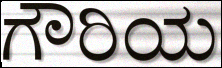
ಗೌರಿಯ